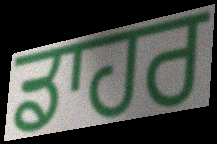
ਡਾਹਰ